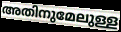
അതിനുമേലുള്ള